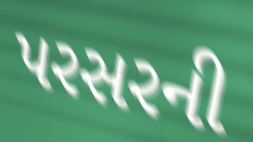
પરસરની